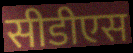
सीडीएस